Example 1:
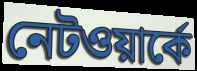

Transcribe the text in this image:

নেটওয়ার্কে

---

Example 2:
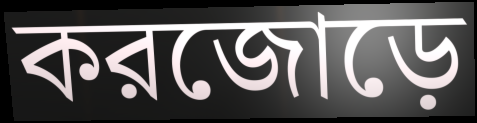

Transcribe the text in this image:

করজোড়ে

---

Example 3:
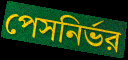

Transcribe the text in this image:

পেসনির্ভর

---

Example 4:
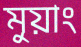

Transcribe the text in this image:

মুয়াং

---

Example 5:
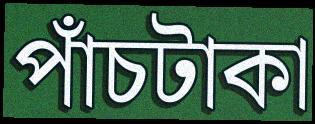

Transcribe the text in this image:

পাঁচটাকা